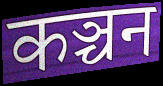
कञ्चन